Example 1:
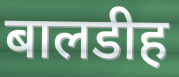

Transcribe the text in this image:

बालडीह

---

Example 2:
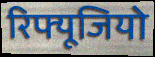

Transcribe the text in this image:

रिफ्यूजियो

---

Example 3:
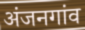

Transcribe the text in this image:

अंजनगांव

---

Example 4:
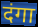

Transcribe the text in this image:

दंगा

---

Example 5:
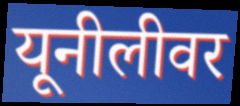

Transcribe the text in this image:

यूनीलीवर